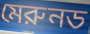
মেরুনড